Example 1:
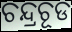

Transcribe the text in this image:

ଚନ୍ଦ୍ରଚୂଡ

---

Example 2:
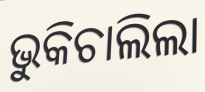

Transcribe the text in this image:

ଭୁକିଚାଲିଲା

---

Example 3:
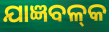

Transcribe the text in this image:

ଯାଜ୍ଞବଳ୍‌କ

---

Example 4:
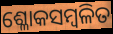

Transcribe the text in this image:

ଶ୍ଳୋକସମ୍ବଳିତ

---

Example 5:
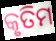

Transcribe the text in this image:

କୃତିମ